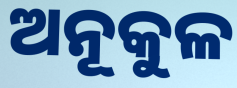
ଅନୂକୁଳ